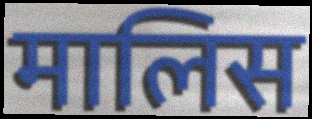
मालिस